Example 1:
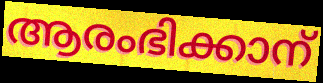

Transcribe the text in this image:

ആരംഭിക്കാന്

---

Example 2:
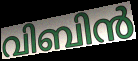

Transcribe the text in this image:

വിബിൻ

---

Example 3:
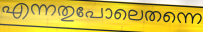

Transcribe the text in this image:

എന്നതുപോലെതന്നെ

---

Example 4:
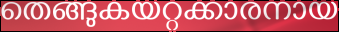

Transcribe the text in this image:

തെങ്ങുകയറ്റക്കാരനായ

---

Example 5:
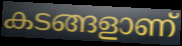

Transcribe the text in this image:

കടങ്ങളാണ്